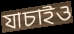
যাচাইও